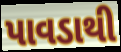
પાવડાથી